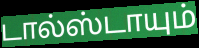
டால்ஸ்டாயும்